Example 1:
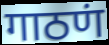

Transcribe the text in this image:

गाठणं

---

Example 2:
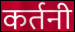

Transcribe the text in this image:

कर्तनी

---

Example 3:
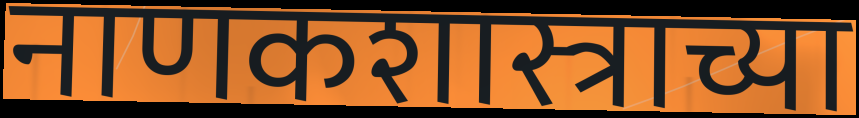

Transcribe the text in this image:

नाणकशास्त्राच्या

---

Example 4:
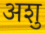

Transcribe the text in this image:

अशु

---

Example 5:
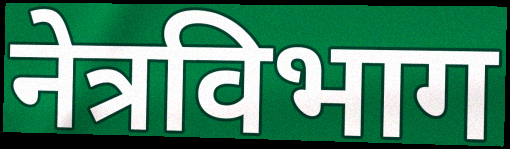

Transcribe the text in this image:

नेत्रविभाग